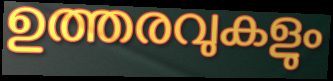
ഉത്തരവുകളും